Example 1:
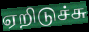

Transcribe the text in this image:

ஏறிடுச்சு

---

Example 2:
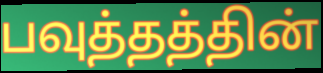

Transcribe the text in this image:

பவுத்தத்தின்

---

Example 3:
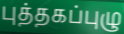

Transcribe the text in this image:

புத்தகப்புழு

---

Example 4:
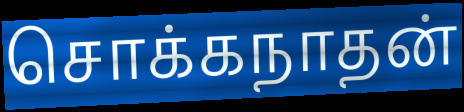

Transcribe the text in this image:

சொக்கநாதன்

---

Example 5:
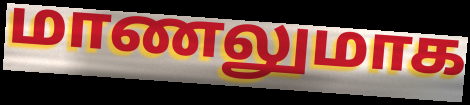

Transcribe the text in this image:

மாணலுமாக